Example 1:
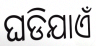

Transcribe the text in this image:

ଘଡିଯାଏଁ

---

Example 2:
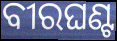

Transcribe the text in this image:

ବୀରଘଣ୍ଟ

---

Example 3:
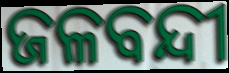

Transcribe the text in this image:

ଜଳବନ୍ଦୀ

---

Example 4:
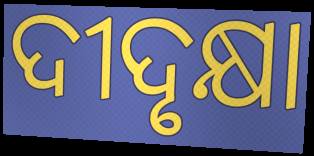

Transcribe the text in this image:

ଦୀଦୃକ୍ଷା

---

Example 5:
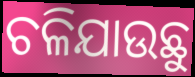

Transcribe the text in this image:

ଚଳିଯାଉଛୁ